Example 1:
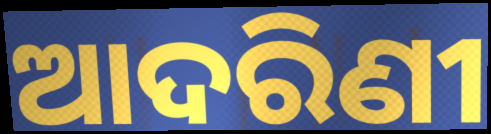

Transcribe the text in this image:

ଆଦରିଣୀ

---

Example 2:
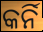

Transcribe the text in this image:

କର୍ନି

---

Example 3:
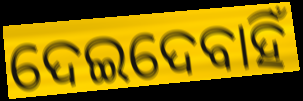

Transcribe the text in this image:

ଦେଇଦେବାହିଁ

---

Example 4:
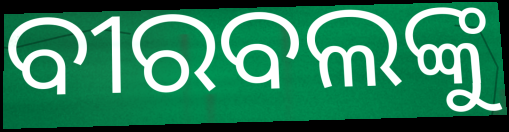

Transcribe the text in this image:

ବୀରବଲଙ୍କୁ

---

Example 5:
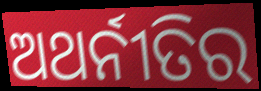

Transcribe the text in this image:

ଅଥର୍ନୀତିର